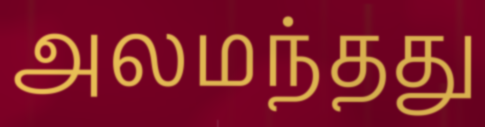
அலமந்தது